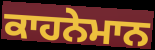
ਕਾਹਨੇਮਾਨ